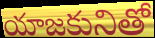
యాజకునితో